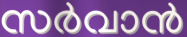
സർവാൻ